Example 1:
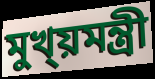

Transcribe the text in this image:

মুখ্য়মন্ত্রী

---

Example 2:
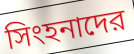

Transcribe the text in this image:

সিংহনাদের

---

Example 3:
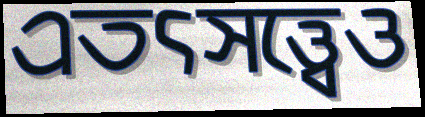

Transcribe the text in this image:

এতৎসত্ত্বেও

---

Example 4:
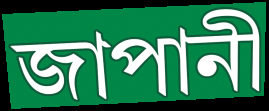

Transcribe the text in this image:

জাপানী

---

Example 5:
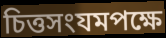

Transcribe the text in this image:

চিত্তসংযমপক্ষে